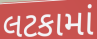
લટકામાં